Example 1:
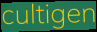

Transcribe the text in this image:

cultigen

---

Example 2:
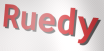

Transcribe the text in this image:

Ruedy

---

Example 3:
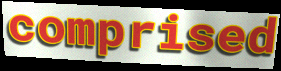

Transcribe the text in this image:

comprised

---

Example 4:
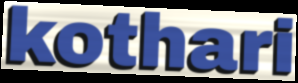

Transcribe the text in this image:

kothari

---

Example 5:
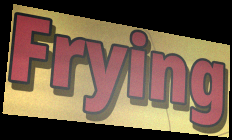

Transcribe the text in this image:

Frying